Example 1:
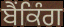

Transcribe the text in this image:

ਬੈਂਕਿੰਗ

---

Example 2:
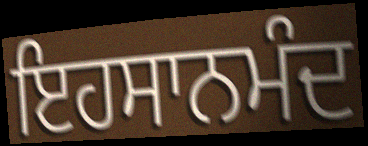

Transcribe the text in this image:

ਇਹਸਾਨਮੰਦ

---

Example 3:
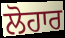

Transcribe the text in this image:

ਲੋਹਾਰ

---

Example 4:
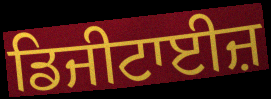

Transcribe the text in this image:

ਡਿਜੀਟਾਈਜ਼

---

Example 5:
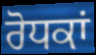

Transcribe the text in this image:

ਰੋਧਕਾਂ